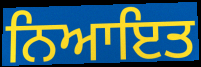
ਨਿਆਇਤ